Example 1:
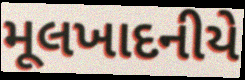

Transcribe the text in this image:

મૂલખાદનીયે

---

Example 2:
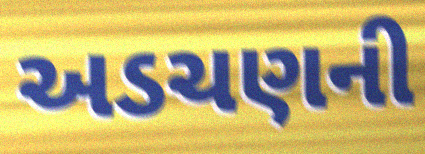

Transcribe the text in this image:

અડચણની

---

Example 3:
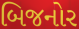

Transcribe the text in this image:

બિજનોર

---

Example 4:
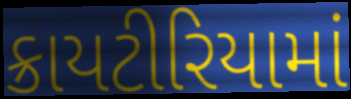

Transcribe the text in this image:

ક્રાયટીરિયામાં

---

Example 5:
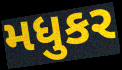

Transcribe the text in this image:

મધુકર